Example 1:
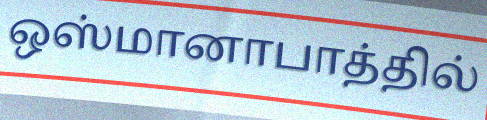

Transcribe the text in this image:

ஒஸ்மானாபாத்தில்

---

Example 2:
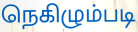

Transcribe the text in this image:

நெகிழும்படி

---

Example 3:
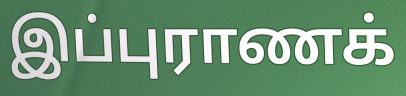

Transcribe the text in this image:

இப்புராணக்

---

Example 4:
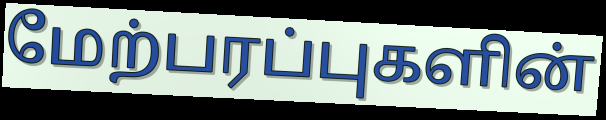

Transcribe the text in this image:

மேற்பரப்புகளின்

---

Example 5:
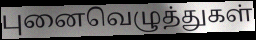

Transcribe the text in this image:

புனைவெழுத்துகள்